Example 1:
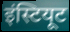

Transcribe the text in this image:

इंस्टियूट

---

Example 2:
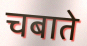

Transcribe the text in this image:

चबाते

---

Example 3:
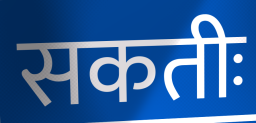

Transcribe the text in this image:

सकतीः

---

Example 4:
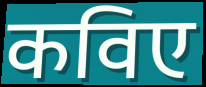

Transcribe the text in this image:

कविए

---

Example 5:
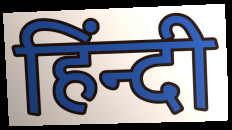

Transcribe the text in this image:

हिंन्दी